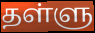
தள்ளு